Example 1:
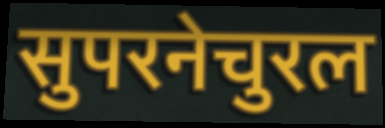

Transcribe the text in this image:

सुपरनेचुरल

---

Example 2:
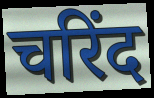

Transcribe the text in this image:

चरिंद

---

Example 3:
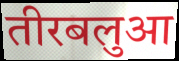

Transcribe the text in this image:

तीरबलुआ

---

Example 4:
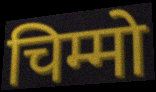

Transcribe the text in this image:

चिम्मो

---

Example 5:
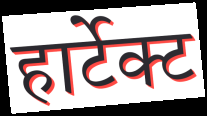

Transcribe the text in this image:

हार्टेक्ट